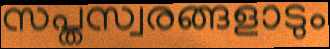
സപ്തസ്വരങ്ങളാടും